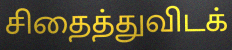
சிதைத்துவிடக்